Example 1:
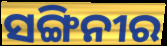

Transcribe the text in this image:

ସଙ୍ଗିନୀର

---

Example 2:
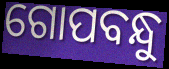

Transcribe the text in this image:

ଗୋପବନ୍ଧୁ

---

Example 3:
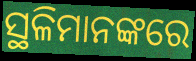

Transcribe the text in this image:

ସ୍ଥଳିମାନଙ୍କରେ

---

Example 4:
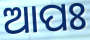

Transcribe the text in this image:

ଆପଃ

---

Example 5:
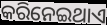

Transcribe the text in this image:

କରିନେଇଥାଏ